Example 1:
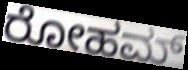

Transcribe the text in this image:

ರೋಹಮ್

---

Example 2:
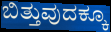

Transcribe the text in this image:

ಬಿತ್ತುವುದಕ್ಕೂ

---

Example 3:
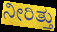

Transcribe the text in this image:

ನೀರಿತ್ತು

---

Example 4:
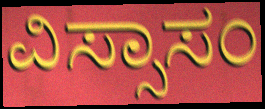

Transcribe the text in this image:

ವಿಸ್ಸಾಸಂ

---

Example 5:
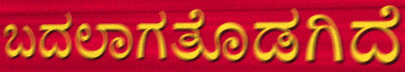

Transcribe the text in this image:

ಬದಲಾಗತೊಡಗಿದೆ